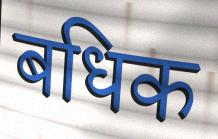
बधिक